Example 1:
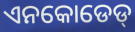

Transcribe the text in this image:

ଏନକୋଡେଡ୍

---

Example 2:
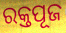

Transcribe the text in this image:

ରକ୍ତପୂଜ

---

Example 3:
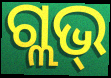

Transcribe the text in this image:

ଗ୍ଲଭ୍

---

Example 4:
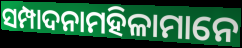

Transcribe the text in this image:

ସମ୍ପାଦନାମହିଳାମାନେ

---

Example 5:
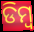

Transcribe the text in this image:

ଡିମ୍ଵ